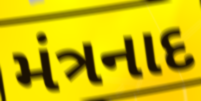
મંત્રનાદ